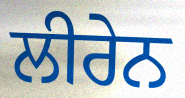
ਲੀਰੇਨ